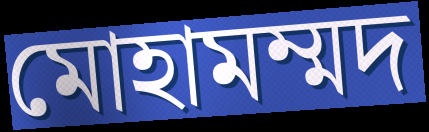
মোহামম্মদ